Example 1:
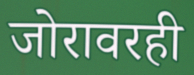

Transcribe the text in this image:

जोरावरही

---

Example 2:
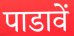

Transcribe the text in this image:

पाडावें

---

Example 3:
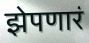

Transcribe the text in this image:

झेपणारं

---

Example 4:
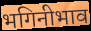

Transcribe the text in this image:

भगिनीभाव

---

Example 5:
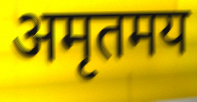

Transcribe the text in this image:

अमृतमय